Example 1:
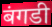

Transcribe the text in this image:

बंगडी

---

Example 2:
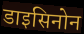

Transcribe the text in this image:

डाइसिनोन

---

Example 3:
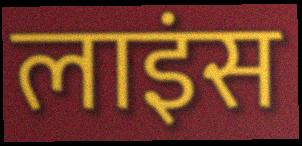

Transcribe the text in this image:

लाइंस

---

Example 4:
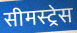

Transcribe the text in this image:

सीमस्ट्रेस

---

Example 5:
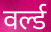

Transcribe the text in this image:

वर्ल्ड